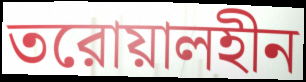
তরোয়ালহীন